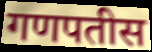
गणपतीस